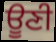
ਊਣੀ